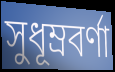
সুধূম্রবর্ণা